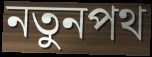
নতুনপথ